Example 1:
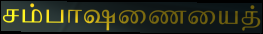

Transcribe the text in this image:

சம்பாஷணையைத்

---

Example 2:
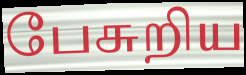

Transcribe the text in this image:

பேசுறிய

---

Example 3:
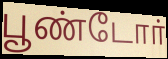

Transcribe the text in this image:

பூண்டோர்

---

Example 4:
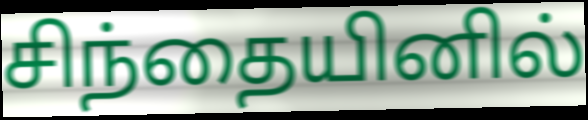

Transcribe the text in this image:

சிந்தையினில்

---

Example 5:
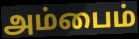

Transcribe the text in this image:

அம்பைம்